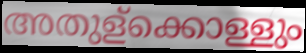
അതുള്ക്കൊള്ളും